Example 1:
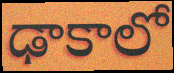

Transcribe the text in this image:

ఢాకాలో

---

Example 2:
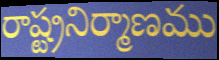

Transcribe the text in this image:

రాష్ట్రనిర్మాణము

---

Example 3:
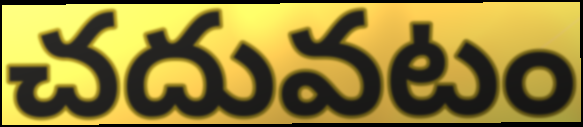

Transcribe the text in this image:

చదువటం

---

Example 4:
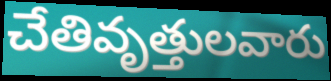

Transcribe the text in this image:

చేతివృత్తులవారు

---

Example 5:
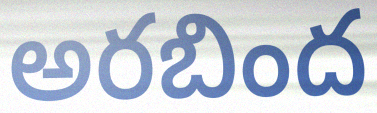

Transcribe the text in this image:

అరబింద